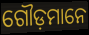
ଗୌଡ଼ମାନେ